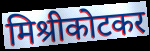
मिश्रीकोटकर